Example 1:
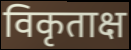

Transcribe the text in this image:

विकृताक्ष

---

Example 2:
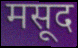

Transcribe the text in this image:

मसूद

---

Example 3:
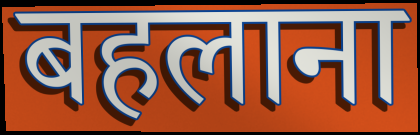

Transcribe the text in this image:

बहलाना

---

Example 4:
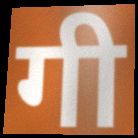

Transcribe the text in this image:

गी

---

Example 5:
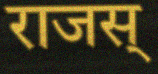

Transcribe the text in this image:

राजस्